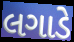
લગાડે